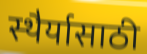
स्थैर्यासाठी